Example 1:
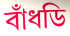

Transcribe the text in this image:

বাঁধডি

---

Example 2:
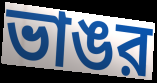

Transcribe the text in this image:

ভাঙর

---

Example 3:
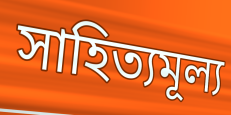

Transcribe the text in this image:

সাহিত্যমূল্য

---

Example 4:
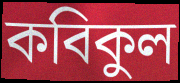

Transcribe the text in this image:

কবিকুল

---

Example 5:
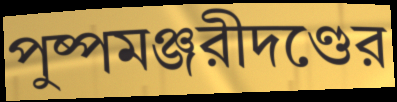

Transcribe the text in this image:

পুষ্পমঞ্জরীদণ্ডের